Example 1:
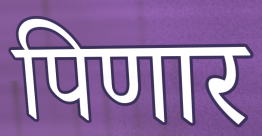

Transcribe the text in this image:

पिणार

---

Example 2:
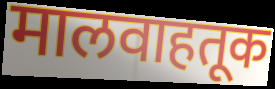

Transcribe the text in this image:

मालवाहतूक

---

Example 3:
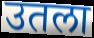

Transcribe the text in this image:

उतला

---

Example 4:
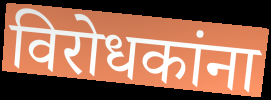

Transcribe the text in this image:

विरोधकांना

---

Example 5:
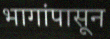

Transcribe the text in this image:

भागांपासून